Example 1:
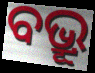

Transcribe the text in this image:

ବଭ୍ରୂ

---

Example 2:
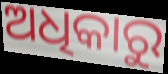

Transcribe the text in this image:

ଅଧିକାରୁ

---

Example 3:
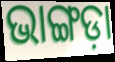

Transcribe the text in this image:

ଭାଙ୍ଗଡ଼ା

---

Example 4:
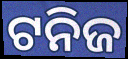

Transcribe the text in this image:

ଟନିଜ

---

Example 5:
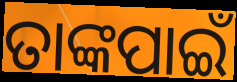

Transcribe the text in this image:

ତାଙ୍କପାଇଁ